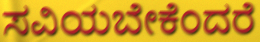
ಸವಿಯಬೇಕೆಂದರೆ